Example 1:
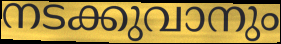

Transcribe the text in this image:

നടക്കുവാനും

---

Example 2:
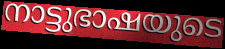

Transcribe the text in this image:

നാട്ടുഭാഷയുടെ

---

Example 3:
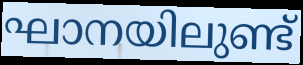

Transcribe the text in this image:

ഘാനയിലുണ്ട്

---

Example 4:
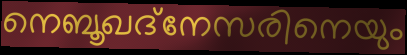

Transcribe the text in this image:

നെബൂഖദ്നേസരിനെയും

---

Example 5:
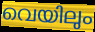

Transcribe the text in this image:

വെയിലും